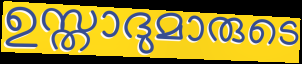
ഉസ്താദുമാരുടെ